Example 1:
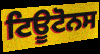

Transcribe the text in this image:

ਟਿਊਟੋਨਸ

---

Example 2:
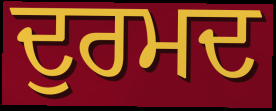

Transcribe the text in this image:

ਦੁਰਮਦ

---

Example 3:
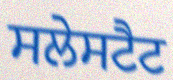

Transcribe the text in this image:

ਸਲੇਸਟੈਟ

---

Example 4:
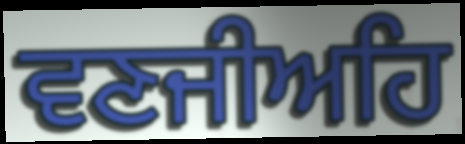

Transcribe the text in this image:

ਵਣਜੀਅਹਿ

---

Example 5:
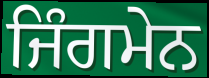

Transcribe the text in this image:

ਜਿੰਗਮੇਨ